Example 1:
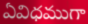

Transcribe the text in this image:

ఏవిధముగా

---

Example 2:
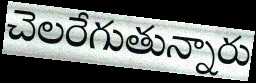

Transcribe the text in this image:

చెలరేగుతున్నారు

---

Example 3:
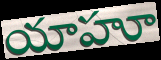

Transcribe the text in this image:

యాహూ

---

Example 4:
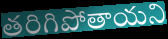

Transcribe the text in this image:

తరిగిపోతాయని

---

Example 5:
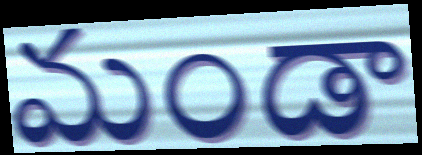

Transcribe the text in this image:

మండా